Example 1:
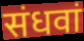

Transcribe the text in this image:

संधवां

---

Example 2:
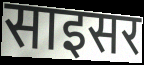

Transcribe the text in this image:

साइसर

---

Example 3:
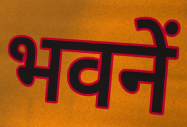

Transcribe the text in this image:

भवनें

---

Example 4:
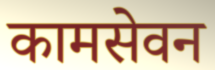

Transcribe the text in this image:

कामसेवन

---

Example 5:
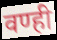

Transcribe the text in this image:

वण्ही